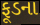
ફૂડના